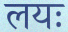
लयः